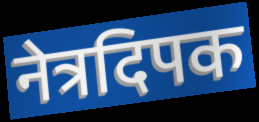
नेत्रदिपक